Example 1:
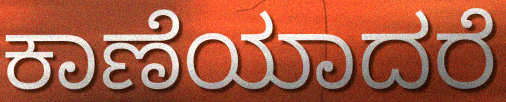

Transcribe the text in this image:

ಕಾಣೆಯಾದರೆ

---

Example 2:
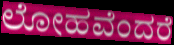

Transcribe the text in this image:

ಲೋಹವೆಂದರೆ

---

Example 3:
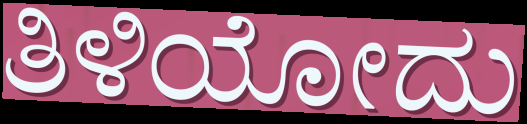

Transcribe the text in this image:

ತಿಳಿಯೋದು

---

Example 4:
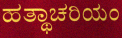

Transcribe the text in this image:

ಹತ್ಥಾಚರಿಯಂ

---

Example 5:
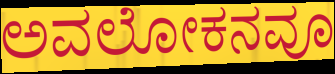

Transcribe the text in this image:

ಅವಲೋಕನವೂ